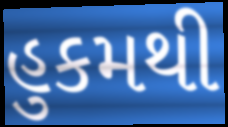
હુકમથી